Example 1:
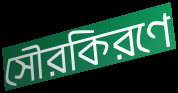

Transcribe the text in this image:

সৌরকিরণে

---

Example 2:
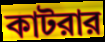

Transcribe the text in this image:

কাটরার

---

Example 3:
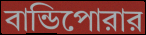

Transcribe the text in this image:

বান্ডিপোরার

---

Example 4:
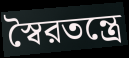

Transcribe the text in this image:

স্বৈরতন্ত্রে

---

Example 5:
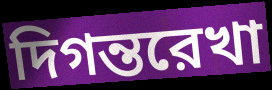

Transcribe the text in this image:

দিগন্তরেখা